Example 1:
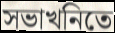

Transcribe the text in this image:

সভাখনিতে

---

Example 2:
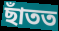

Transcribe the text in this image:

ছাঁতত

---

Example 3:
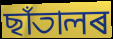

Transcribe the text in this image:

ছাঁতালৰ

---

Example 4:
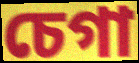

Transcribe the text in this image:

চেগা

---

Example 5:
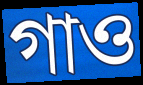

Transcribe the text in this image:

গাও